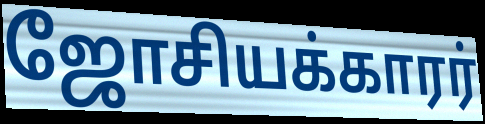
ஜோசியக்காரர்